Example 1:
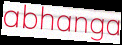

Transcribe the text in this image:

abhanga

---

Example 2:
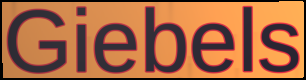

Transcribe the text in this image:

Giebels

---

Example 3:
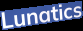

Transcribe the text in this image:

Lunatics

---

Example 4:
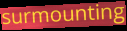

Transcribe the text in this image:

surmounting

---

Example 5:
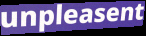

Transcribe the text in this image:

unpleasent